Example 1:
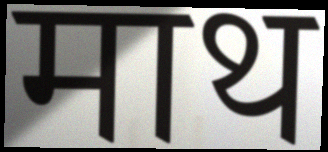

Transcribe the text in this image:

माथ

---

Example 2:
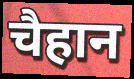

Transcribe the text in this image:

चैहान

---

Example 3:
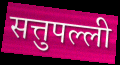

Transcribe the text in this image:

सत्तुपल्ली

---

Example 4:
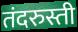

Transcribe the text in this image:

तंदरुस्ती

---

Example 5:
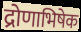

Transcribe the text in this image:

द्रोणाभिषेक